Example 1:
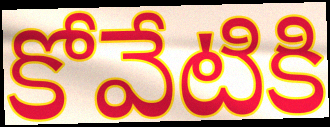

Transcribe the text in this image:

కోవేటికి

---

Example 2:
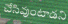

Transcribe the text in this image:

చేసివుంటాడని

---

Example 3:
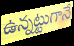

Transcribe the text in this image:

ఉన్నట్టుగానే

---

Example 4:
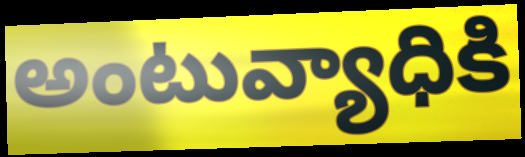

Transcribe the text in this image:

అంటువ్యాధికి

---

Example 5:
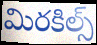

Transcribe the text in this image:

మిరకిల్స్